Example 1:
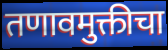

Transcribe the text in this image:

तणावमुक्तीचा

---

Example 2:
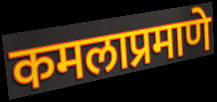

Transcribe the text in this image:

कमलाप्रमाणे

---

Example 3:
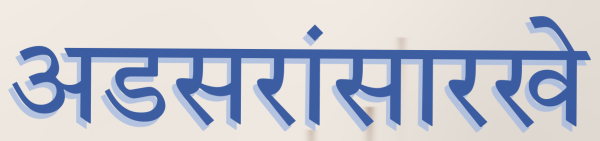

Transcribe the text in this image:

अडसरांसारखे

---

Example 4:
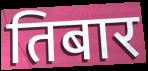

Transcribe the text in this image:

तिबार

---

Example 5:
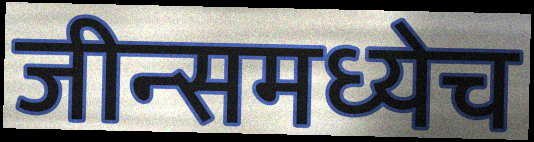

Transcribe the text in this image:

जीन्समध्येच